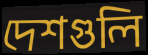
দেশগুলি